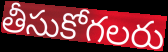
తీసుకోగలరు